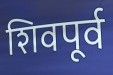
शिवपूर्व